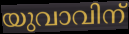
യുവാവിന്